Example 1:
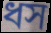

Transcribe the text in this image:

ধস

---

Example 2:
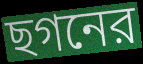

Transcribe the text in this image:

ছগনের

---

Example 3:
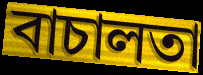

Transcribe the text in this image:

বাচালতা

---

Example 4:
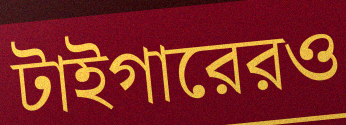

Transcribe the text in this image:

টাইগারেরও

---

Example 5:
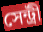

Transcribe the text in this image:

সেন্ট্রী